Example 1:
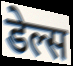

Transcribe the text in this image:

डेल्स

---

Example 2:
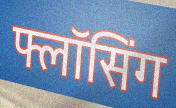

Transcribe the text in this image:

फ्लॉसिंग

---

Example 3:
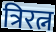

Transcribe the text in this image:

त्रिरत्न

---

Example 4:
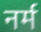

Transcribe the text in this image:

नर्म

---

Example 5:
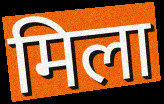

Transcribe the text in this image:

मिला